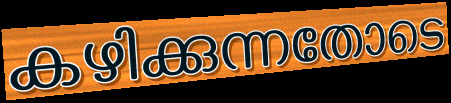
കഴിക്കുന്നതോടെ